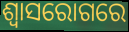
ଶ୍ଵାସରୋଗରେ